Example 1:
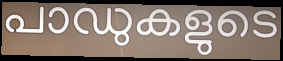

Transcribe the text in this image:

പാഡുകളുടെ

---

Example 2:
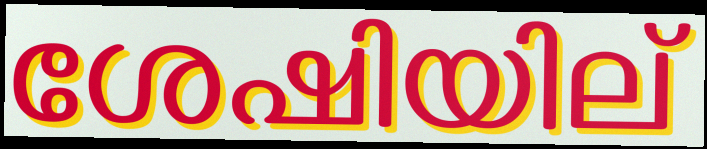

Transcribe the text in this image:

ശേഷിയില്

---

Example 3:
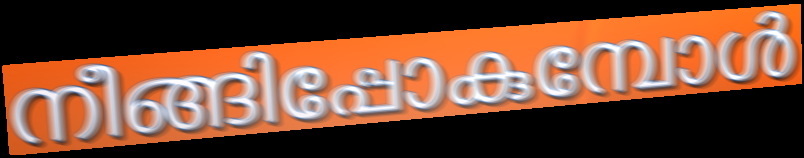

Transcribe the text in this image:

നീങ്ങിപ്പോകുമ്പോൾ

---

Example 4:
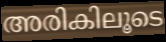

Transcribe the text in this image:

അരികിലൂടെ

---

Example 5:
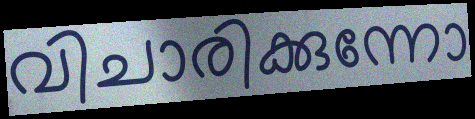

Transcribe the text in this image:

വിചാരിക്കുന്നോ